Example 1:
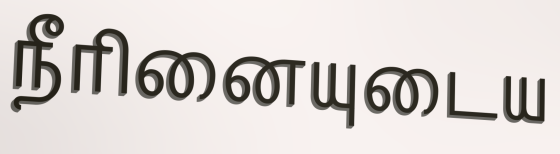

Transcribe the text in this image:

நீரினையுடைய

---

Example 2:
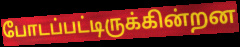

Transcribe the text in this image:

போடப்பட்டிருக்கின்றன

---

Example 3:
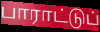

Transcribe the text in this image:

பாராட்டுப்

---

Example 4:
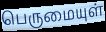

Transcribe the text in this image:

பெருமையுள்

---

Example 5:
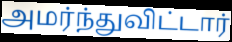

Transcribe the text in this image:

அமர்ந்துவிட்டார்